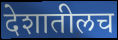
देशातीलच